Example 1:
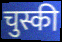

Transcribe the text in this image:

चुस्की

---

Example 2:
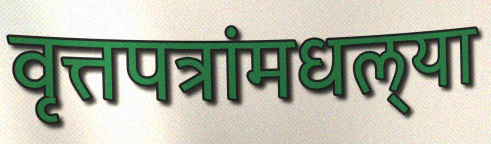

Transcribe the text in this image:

वृत्तपत्रांमधल्या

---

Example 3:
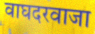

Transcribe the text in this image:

वाघदरवाजा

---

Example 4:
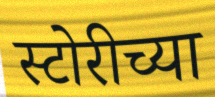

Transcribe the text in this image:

स्टोरीच्या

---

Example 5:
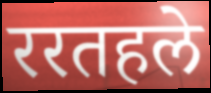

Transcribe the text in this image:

ररतहले